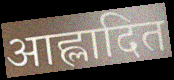
आह्लादित